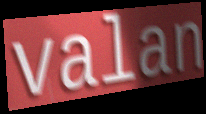
valan